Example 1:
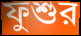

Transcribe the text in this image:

ফুশুর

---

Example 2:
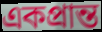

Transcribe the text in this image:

একপ্রান্ত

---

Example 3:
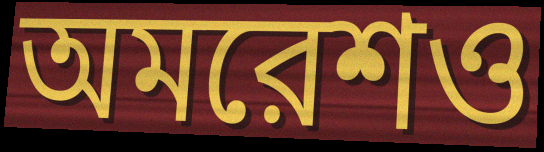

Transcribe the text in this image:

অমরেশও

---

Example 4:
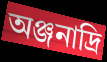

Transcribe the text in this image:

অঞ্জনাদ্রি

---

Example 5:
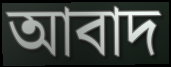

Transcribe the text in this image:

আবাদ